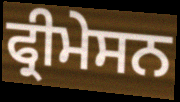
ਫ੍ਰੀਮੇਸਨ